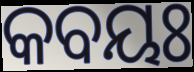
କବୟଃ